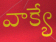
వాక్యే